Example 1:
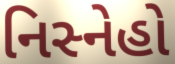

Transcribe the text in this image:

નિસ્નેહો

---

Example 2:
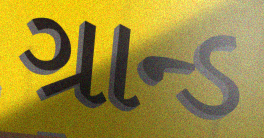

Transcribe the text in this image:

ગ્રાન્ડ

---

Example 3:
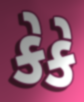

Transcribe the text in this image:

કેકે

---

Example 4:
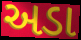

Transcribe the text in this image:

અડા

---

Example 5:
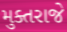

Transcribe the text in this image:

મુક્તરાજે